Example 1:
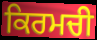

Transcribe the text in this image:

ਕਿਰਮਚੀ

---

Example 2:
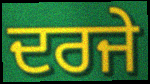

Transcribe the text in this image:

ਦਰਜੇ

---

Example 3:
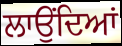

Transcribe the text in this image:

ਲਾਉਂਦਿਆਂ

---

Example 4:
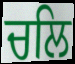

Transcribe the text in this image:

ਚਲਿ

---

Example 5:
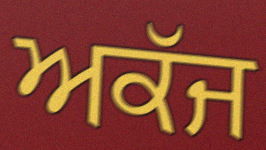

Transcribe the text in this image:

ਅਕੱਜ